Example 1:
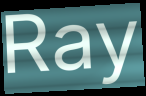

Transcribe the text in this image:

Ray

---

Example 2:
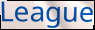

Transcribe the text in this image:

League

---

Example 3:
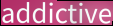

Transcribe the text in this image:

addictive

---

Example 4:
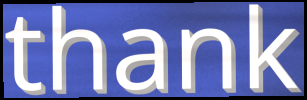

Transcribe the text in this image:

thank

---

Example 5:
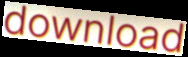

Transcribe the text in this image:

download